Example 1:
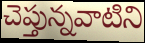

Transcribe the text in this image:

చెప్తున్నవాటిని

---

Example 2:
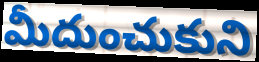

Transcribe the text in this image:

మీదుంచుకుని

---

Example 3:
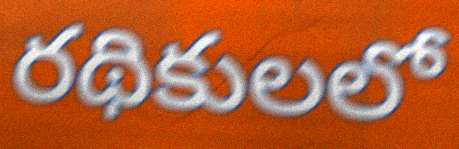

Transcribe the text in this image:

రథికులలో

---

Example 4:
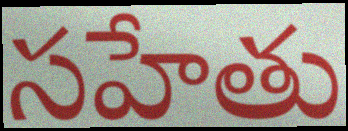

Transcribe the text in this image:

సహేతు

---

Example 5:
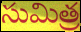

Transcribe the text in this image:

సుమిత్ర